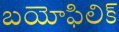
బయోఫిలిక్